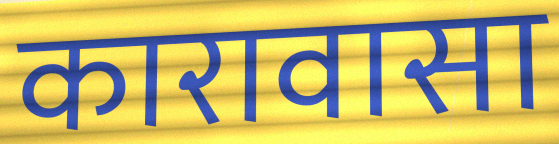
कारावासा